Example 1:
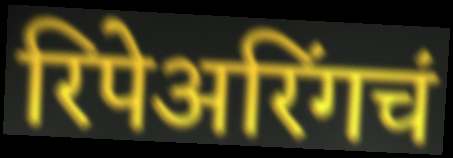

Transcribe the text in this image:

रिपेअरिंगचं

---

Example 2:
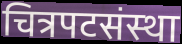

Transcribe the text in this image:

चित्रपटसंस्था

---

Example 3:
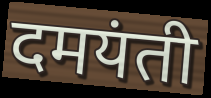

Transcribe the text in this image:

दमयंती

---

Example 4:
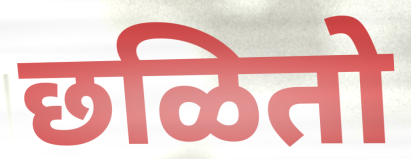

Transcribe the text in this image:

छळितो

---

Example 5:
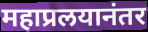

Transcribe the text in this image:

महाप्रलयानंतर